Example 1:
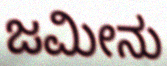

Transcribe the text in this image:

ಜಮೀನು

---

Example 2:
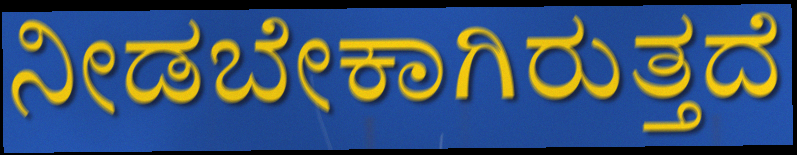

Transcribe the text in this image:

ನೀಡಬೇಕಾಗಿರುತ್ತದೆ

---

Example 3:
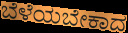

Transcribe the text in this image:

ಬೆಳೆಯಬೇಕಾದ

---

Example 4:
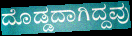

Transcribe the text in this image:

ದೊಡ್ಡದಾಗಿದ್ದವು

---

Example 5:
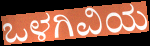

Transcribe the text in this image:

ಒಳಗಿವಿಯ